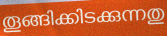
തൂങ്ങിക്കിടക്കുന്നതു